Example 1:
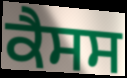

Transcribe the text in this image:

ਕੈਸਸ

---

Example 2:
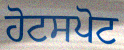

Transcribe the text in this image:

ਹੋਟਸਪੋਟ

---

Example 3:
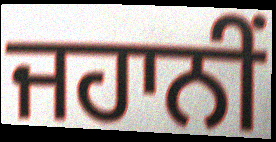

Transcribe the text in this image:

ਜਹਾਨੀਂ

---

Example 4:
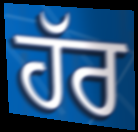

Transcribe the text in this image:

ਹੱਰ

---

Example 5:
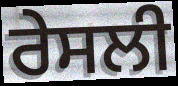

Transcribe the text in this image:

ਰੇਸਲੀ